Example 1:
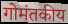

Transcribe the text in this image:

गोमंतकीय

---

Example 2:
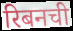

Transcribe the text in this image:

रिबनची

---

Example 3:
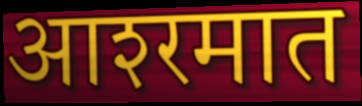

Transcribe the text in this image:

आश्रमात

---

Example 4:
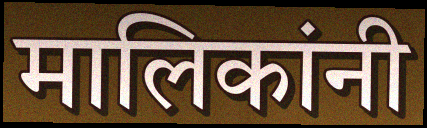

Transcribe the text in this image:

मालिकांनी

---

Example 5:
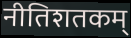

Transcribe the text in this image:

नीतिशतकम्